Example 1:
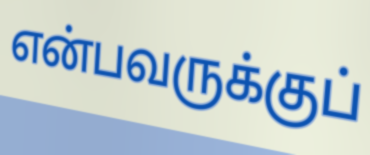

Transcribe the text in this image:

என்பவருக்குப்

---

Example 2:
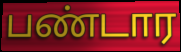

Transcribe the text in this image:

பண்டார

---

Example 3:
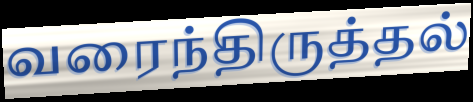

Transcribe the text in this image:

வரைந்திருத்தல்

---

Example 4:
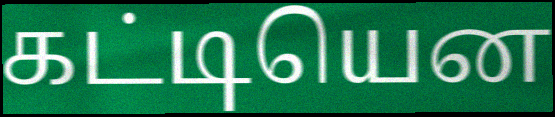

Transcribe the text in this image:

கட்டியென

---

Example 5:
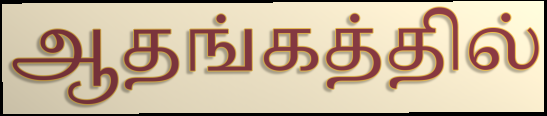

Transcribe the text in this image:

ஆதங்கத்தில்